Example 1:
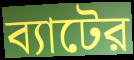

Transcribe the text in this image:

ব্যাটের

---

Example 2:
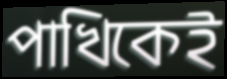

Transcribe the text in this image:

পাখিকেই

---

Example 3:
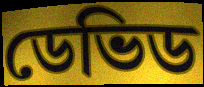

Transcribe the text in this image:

ডেভিড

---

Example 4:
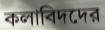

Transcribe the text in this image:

কলাবিদদের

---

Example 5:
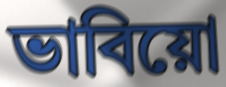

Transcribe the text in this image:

ভাবিয়ো